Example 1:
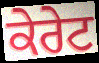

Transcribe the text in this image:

ਕੇਰੇਟ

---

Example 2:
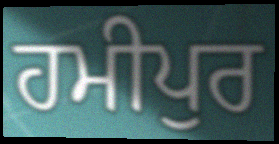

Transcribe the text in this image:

ਹਮੀਪੁਰ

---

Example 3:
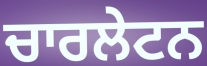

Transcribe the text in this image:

ਚਾਰਲੇਟਨ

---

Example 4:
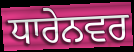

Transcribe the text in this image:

ਧਾਰੇਨਵਰ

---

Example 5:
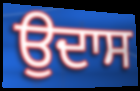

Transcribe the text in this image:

ਉਦਾਸ